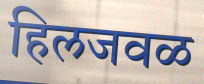
हिलजवळ